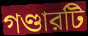
গণ্ডারটি